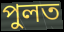
পুলত